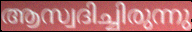
ആസ്വദിച്ചിരുന്നു